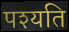
पश्यति